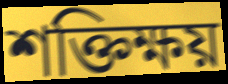
শক্তিক্ষয়